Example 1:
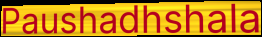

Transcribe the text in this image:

Paushadhshala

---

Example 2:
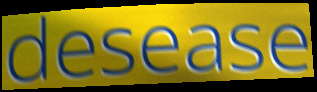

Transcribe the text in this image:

desease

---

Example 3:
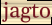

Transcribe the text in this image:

jagto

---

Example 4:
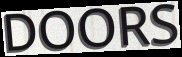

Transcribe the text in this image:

DOORS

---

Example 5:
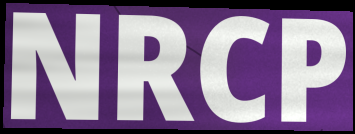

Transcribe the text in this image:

NRCP